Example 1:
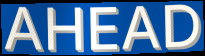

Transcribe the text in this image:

AHEAD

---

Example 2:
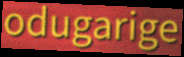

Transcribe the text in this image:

odugarige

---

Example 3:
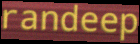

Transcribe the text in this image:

randeep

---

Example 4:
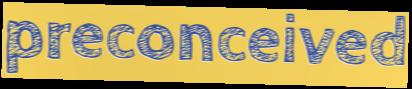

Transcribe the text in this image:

preconceived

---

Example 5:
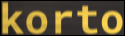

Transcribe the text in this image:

korto